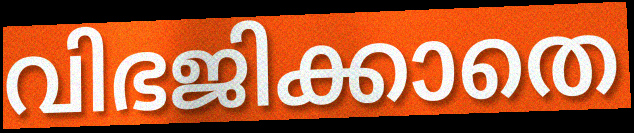
വിഭജിക്കാതെ